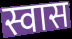
स्वास